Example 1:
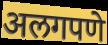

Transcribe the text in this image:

अलगपणे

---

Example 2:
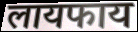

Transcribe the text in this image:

लायफाय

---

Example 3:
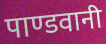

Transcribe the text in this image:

पाण्डवानी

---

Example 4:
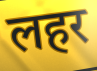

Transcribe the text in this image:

लहर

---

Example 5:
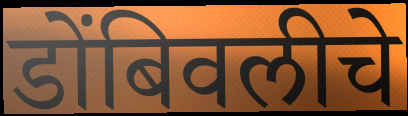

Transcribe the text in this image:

डोंबिवलीचे